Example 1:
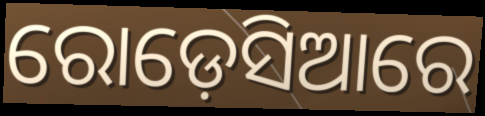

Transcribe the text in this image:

ରୋଡ଼େସିଆରେ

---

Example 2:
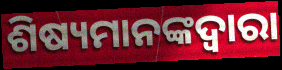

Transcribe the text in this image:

ଶିଷ୍ୟମାନଙ୍କଦ୍ୱାରା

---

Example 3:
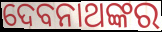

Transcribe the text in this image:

ଦେବନାଥଙ୍କର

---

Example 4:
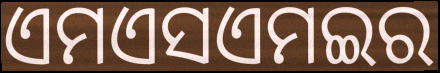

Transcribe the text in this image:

ଏମଏସଏମଇର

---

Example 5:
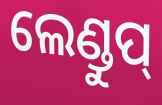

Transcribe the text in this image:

ଲେଣ୍ଡୁପ୍